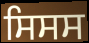
ਸਿਸਸ